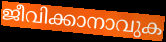
ജീവിക്കാനാവുക